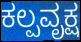
ಕಲ್ಪವೃಕ್ಷ